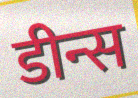
डीन्स